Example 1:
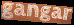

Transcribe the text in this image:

gangar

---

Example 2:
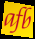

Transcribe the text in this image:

afb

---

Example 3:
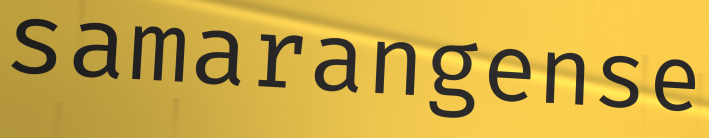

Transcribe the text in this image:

samarangense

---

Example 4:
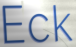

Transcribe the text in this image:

Eck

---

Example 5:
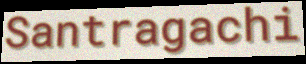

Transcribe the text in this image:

Santragachi